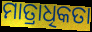
ମାତ୍ରାଧିକତା